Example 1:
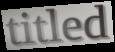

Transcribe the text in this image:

titled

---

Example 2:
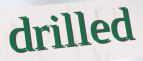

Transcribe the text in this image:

drilled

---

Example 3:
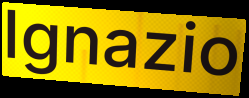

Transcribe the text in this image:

Ignazio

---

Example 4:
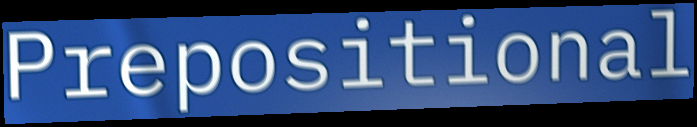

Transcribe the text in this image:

Prepositional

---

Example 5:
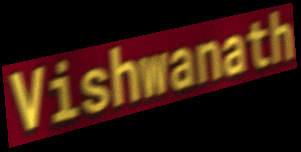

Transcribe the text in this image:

Vishwanath